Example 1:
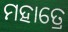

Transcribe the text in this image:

ମହାତ୍ରେ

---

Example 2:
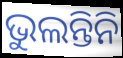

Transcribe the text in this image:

ଭୁଲନ୍ତିନି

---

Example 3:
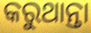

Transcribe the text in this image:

କରୁଥାନ୍ତା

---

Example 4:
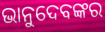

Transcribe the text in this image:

ଭାନୁଦେବଙ୍କର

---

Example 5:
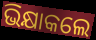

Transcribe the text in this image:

ଭିକ୍ଷାକଲେ